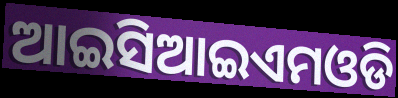
ଆଇସିଆଇଏମଓଡି